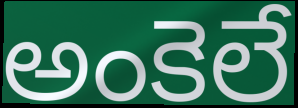
అంకెలే